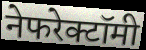
नेफरेक्टॉमी